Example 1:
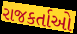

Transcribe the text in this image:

રાજકર્તાઓ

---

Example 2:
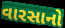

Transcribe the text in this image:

વારસાનો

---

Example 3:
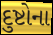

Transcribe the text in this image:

દુષ્ટોના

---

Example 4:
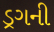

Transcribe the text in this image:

ડ્રગની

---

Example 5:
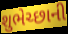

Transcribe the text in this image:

શુભેચ્છાની